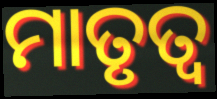
ମାତୃତ୍ୱ